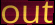
out